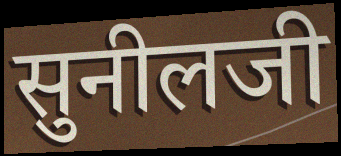
सुनीलजी